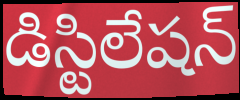
డిస్టిలేషన్